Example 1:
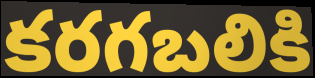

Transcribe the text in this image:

కరగబలికి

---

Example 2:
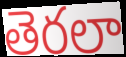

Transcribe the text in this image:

తెరలా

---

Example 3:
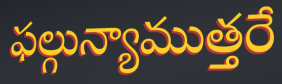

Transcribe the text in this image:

ఫల్గున్యాముత్తరే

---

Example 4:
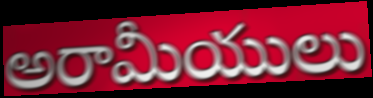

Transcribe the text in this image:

అరామీయులు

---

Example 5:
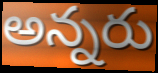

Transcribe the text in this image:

అన్నరు